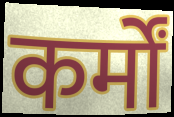
कर्मों